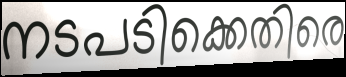
നടപടിക്കെതിരെ